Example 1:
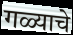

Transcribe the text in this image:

गळ्याचे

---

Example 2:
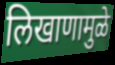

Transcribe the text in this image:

लिखाणामुळे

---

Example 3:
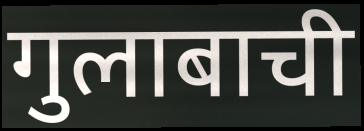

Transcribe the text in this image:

गुलाबाची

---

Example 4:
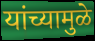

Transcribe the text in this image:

यांच्यामुळे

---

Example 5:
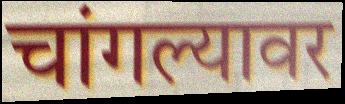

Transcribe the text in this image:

चांगल्यावर